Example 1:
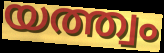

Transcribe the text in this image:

യത്ത്വം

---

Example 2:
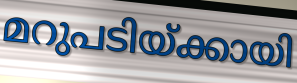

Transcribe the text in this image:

മറുപടിയ്ക്കായി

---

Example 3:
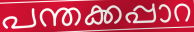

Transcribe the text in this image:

പന്തക്കപ്പാറ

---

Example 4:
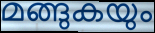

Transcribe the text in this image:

മങ്ങുകയും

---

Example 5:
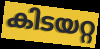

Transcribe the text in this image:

കിടയറ്റ